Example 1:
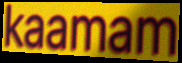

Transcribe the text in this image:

kaamam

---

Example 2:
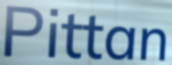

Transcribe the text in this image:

Pittan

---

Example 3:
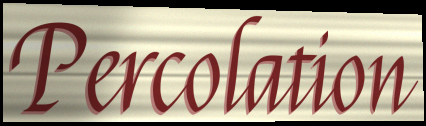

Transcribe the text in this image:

Percolation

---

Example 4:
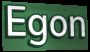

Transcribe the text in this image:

Egon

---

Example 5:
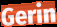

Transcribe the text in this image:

Gerin